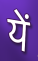
यें